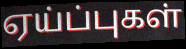
ஏய்ப்புகள்